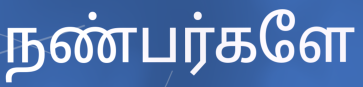
நண்பர்களே